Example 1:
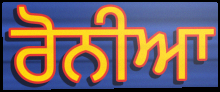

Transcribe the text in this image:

ਰੋਨੀਆ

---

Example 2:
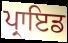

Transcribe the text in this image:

ਪ੍ਰਾਇਡ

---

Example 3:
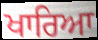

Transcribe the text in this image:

ਖਾਰਿਆ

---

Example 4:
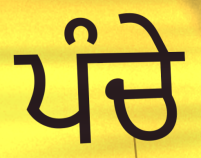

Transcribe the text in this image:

ਪੰਚੇ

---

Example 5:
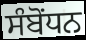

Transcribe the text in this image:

ਸੰਬੋੰਧਨ